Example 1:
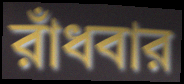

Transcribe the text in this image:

রাঁধবার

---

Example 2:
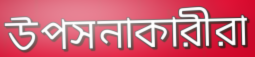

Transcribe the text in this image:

উপসনাকারীরা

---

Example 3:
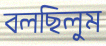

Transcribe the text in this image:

বলছিলুম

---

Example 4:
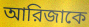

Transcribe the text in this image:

আরিজাকে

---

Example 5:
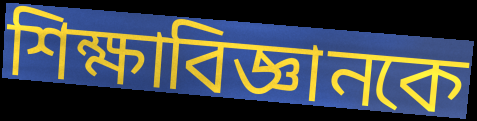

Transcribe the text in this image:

শিক্ষাবিজ্ঞানকে